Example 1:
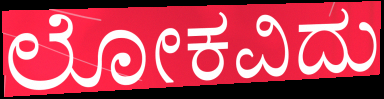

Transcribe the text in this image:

ಲೋಕವಿದು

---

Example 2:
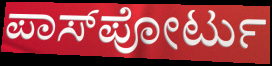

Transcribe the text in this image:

ಪಾಸ್‌ಪೋರ್ಟು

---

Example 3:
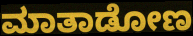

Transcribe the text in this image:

ಮಾತಾಡೋಣ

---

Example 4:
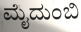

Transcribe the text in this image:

ಮೈದುಂಬಿ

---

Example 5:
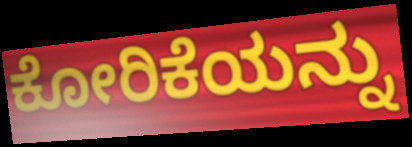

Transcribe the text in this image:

ಕೋರಿಕೆಯನ್ನು